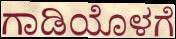
ಗಾಡಿಯೊಳಗೆ